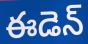
ఈడెన్